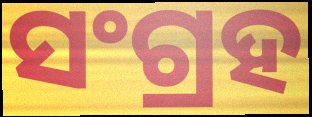
ସଂଗ୍ରହ